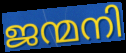
ജന്മനി